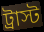
ট্রাস্ট